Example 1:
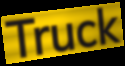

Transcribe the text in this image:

Truck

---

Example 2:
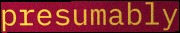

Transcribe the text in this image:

presumably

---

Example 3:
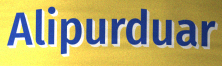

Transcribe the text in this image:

Alipurduar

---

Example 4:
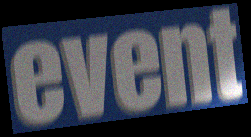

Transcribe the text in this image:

event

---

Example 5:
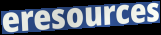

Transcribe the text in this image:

eresources